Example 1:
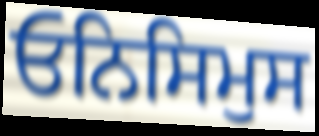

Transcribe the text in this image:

ਓਨਿਸਿਮੁਸ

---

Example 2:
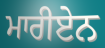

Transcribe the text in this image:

ਮਾਰੀਏਨ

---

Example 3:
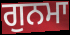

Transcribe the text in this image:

ਗੁਨਮਾ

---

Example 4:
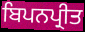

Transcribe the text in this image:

ਬਿਪਨਪ੍ਰੀਤ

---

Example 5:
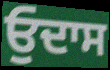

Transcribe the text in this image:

ਓੁਦਾਸ